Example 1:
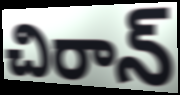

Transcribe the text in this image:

చిరాన్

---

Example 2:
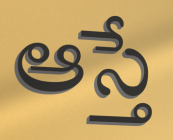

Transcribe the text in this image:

ఆస్తే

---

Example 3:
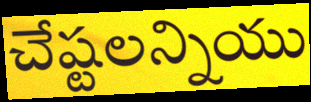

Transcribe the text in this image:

చేష్టలన్నియు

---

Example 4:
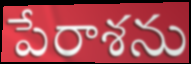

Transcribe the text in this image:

పేరాశను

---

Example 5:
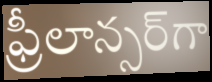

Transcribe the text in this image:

ఫ్రీలాన్సర్‌గా